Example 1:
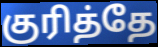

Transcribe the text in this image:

குரித்தே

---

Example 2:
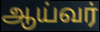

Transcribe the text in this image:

ஆய்வர்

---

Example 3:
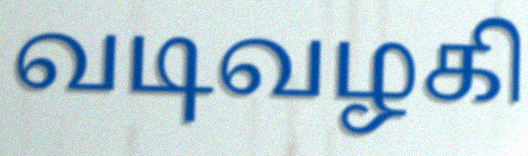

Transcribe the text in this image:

வடிவழகி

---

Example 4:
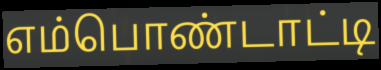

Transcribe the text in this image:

எம்பொண்டாட்டி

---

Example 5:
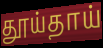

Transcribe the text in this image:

தூய்தாய்